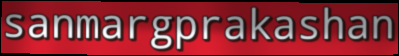
sanmargprakashan